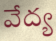
వేద్య